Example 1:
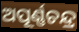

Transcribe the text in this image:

ଅପୂର୍ଣ୍ଣଚନ୍ଦ୍ର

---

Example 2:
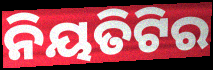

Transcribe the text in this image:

ନିୟତିଟିର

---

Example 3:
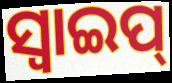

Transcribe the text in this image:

ସ୍ୱାଇପ୍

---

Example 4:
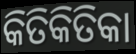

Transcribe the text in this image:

କିତିକିତିକା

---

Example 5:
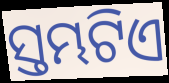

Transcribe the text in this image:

ସ୍ତମ୍ଭଟିଏ